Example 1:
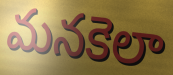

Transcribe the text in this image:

మనకెలా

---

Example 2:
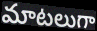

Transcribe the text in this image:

మాటలుగా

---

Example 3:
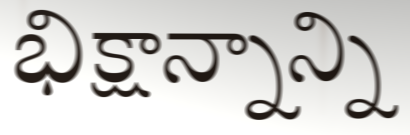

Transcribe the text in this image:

భిక్షాన్నాన్ని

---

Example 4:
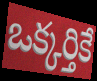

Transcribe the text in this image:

ఒక్కర్తికే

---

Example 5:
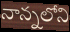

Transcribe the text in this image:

నాన్నలోని